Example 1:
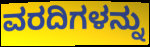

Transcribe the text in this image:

ವರದಿಗಳನ್ನು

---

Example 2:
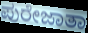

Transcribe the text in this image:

ಪುರೇಜಾತಾ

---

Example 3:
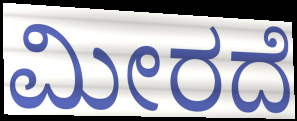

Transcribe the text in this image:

ಮೀರದೆ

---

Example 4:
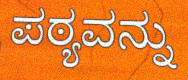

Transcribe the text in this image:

ಪಠ್ಯವನ್ನು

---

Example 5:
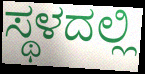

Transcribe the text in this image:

ಸ್ಥಳದಲ್ಲಿ